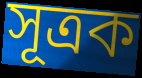
সূত্ৰক